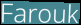
Farouk